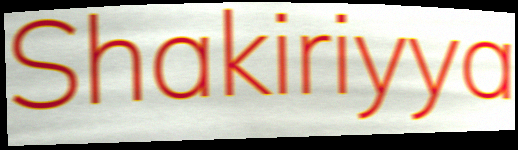
Shakiriyya